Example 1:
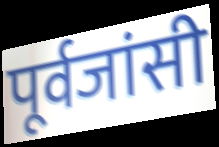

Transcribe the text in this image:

पूर्वजांसी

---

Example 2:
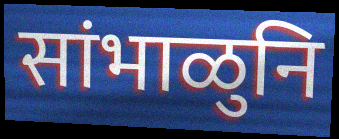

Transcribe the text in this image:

सांभाळुनि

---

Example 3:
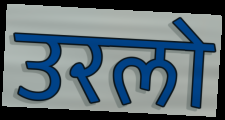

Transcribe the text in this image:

उरलो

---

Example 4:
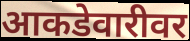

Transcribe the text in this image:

आकडेवारीवर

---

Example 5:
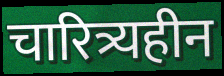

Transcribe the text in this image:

चारित्र्यहीन